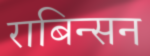
राबिन्सन